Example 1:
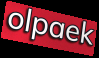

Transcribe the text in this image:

olpaek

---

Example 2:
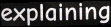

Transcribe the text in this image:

explaining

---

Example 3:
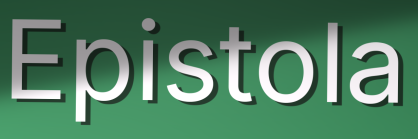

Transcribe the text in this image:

Epistola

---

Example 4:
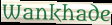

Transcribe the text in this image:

Wankhade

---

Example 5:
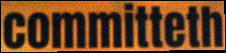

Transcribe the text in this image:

committeth